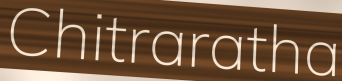
Chitraratha